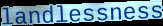
landlessness